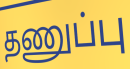
தணுப்பு